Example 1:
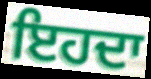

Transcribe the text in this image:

ਇਹਦਾ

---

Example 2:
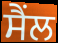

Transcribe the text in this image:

ਸੈਂਲ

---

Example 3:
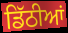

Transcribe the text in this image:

ਡਿੱਠੀਆਂ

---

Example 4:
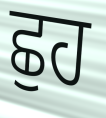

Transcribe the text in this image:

ਛੁਹ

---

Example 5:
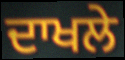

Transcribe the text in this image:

ਦਾਖਲੇ